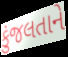
કુંજલતાને